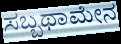
ಸಬ್ಬಥಾಮೇನ